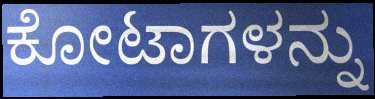
ಕೋಟಾಗಳನ್ನು